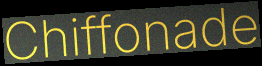
Chiffonade